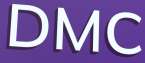
DMC